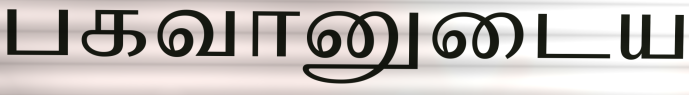
பகவானுடைய